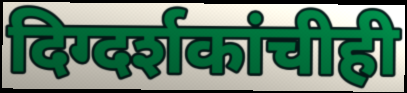
दिग्दर्शकांचीही